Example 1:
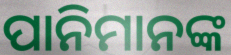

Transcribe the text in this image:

ପାନିମାନଙ୍କ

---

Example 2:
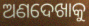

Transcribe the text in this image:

ଅଣଦେଖାକୁ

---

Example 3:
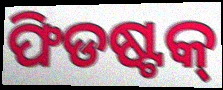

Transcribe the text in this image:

ଫିଡଷ୍ଟକ୍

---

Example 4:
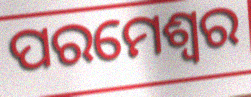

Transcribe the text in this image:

ପରମେଶ୍ବର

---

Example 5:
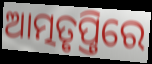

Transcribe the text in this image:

ଆତ୍ମତୃପ୍ତିରେ